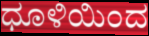
ಧೂಳಿಯಿಂದ